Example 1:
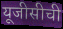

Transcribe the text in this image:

यूजीसीची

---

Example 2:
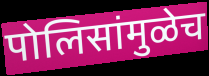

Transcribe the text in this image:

पोलिसांमुळेच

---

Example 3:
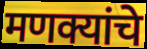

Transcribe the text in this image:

मणक्यांचे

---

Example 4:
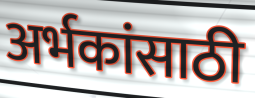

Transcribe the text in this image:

अर्भकांसाठी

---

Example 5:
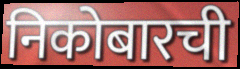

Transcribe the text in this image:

निकोबारची